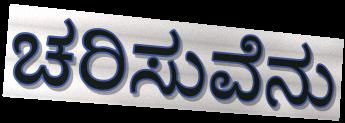
ಚರಿಸುವೆನು